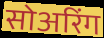
सोअरिंग